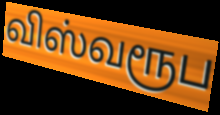
விஸ்வரூப